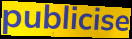
publicise